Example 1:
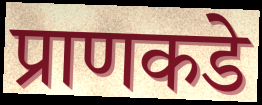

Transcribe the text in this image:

प्राणकडे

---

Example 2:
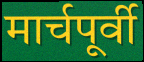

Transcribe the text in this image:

मार्चपूर्वी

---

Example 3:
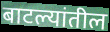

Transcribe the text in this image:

बाटल्यांतील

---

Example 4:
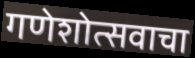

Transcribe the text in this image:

गणेशोत्सवाचा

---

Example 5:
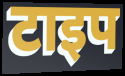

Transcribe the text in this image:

टाइप